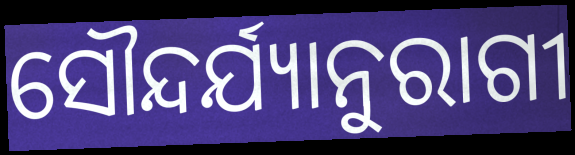
ସୌନ୍ଦର୍ଯ୍ୟାନୁରାଗୀ